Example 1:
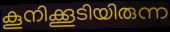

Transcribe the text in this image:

കൂനിക്കൂടിയിരുന്ന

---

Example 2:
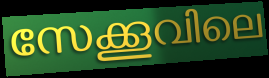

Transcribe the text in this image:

സേക്കൂവിലെ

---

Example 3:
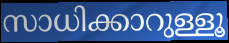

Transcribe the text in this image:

സാധിക്കാറുള്ളൂ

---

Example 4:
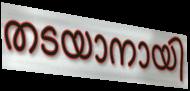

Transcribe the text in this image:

തടയാനായി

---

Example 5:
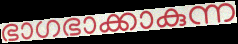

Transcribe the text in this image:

ഭാഗഭാക്കാകുന്ന